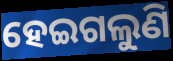
ହେଇଗଲୁଣି